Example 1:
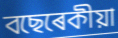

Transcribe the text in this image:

বছেৰেকীয়া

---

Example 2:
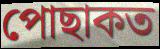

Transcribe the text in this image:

পোছাকত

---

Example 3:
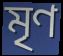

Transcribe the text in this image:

মৃণ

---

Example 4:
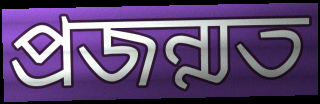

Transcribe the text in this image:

প্ৰজন্মত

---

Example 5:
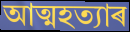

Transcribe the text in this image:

আত্মহত্যাৰ